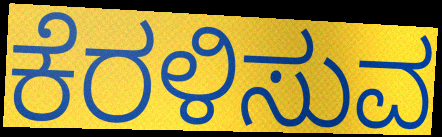
ಕೆರಳಿಸುವ